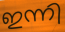
ഇന്നി